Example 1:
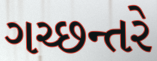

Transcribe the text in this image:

ગચ્છન્તરે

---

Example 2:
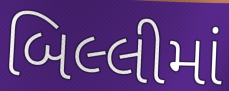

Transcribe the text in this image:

બિલ્લીમાં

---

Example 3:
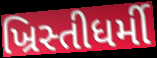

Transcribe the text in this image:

ખ્રિસ્તીધર્મી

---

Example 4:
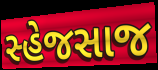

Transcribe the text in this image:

સ્હેજસાજ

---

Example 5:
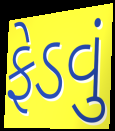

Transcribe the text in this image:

ફેડવું